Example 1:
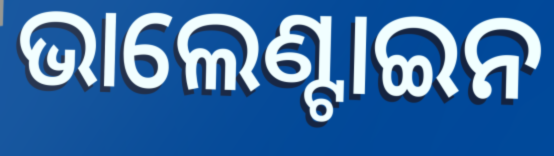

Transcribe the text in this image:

ଭାଲେଣ୍ଟାଇନ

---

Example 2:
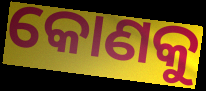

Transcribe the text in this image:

କୋଣକୁ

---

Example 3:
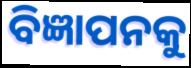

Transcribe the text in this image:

ବିଜ୍ଞାପନକୁ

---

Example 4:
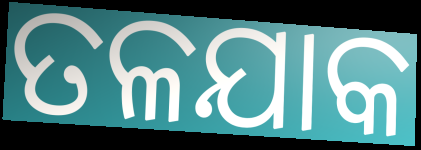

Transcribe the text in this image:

ତଳଯାକ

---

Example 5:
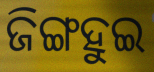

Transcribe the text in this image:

ଜିଙ୍ଗହୁଇ